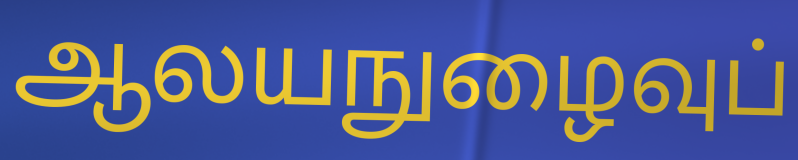
ஆலயநுழைவுப்